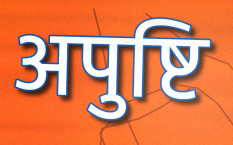
अपुष्टि